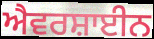
ਐਵਰਸ਼ਾਈਨ